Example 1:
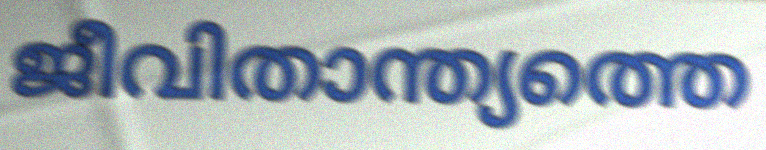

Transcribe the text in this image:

ജീവിതാന്ത്യത്തെ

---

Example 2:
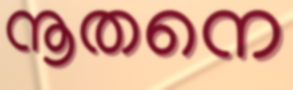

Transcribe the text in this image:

നൂതനെ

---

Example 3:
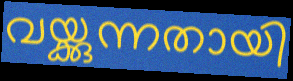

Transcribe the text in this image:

വയ്ക്കുന്നതായി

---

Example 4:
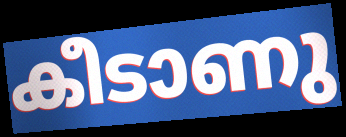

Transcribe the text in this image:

കീടാണു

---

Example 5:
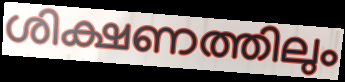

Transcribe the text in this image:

ശിക്ഷണത്തിലും